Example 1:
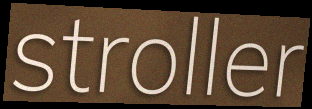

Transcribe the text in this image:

stroller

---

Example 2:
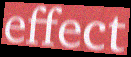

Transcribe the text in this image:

effect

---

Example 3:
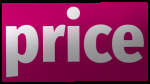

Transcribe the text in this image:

price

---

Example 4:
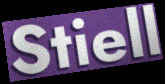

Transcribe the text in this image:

Stiell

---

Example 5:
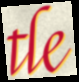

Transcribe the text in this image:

tle